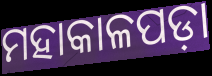
ମହାକାଳପଡ଼ା